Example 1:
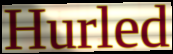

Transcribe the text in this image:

Hurled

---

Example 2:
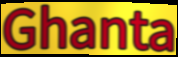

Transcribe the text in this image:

Ghanta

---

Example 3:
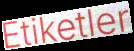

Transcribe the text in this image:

Etiketler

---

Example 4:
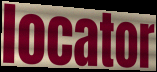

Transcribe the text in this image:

locator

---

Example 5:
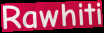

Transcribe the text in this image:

Rawhiti